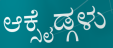
ಆಕ್ಸೈಡ್ಗಳು